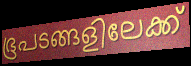
ഭൂപടങ്ങളിലേക്ക്